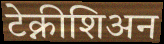
टेक्नीशिअन